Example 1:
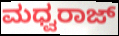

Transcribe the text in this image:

ಮಧ್ವರಾಜ್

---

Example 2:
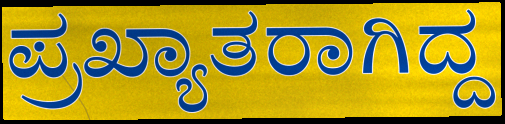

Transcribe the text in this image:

ಪ್ರಖ್ಯಾತರಾಗಿದ್ದ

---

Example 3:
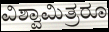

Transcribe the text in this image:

ವಿಶ್ವಾಮಿತ್ರರೂ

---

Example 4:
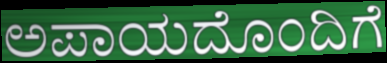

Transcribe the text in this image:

ಅಪಾಯದೊಂದಿಗೆ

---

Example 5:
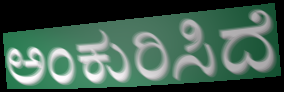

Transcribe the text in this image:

ಅಂಕುರಿಸಿದೆ